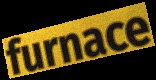
furnace